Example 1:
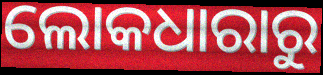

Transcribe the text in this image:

ଲୋକଧାରାରୁ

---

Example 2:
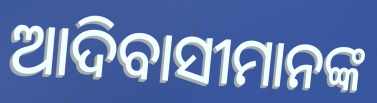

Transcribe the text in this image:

ଆଦିବାସୀମାନଙ୍କ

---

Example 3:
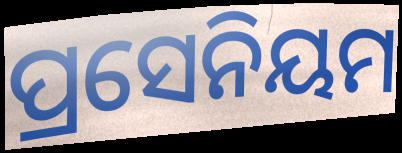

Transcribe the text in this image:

ପ୍ରସେନିୟମ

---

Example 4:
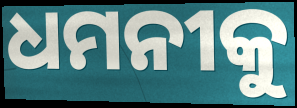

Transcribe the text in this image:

ଧମନୀକୁ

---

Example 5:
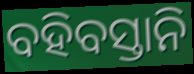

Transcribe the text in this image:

ବହିବସ୍ତାନି